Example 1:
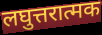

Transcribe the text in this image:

लघुत्तरात्मक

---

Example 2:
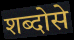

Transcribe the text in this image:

शब्दोसे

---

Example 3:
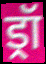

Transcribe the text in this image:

ड्रॉ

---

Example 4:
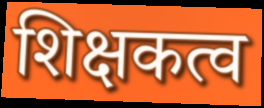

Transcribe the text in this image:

शिक्षकत्व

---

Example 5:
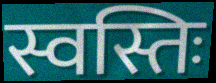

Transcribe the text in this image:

स्वस्तिः